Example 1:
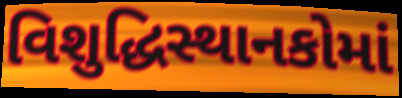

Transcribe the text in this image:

વિશુદ્ધિસ્થાનકોમાં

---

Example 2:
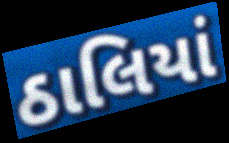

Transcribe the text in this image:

ઠાલિયાં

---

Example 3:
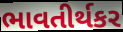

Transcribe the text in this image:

ભાવતીર્થકર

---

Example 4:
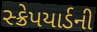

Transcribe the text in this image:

સ્ક્રેપયાર્ડની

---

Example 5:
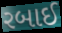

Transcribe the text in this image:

રબાઈ